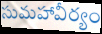
సుమహావీర్యం